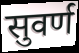
सुवर्ण